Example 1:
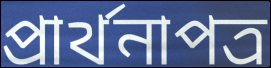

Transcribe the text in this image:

প্রার্থনাপত্র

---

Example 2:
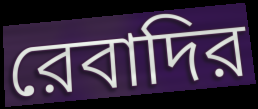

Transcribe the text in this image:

রেবাদির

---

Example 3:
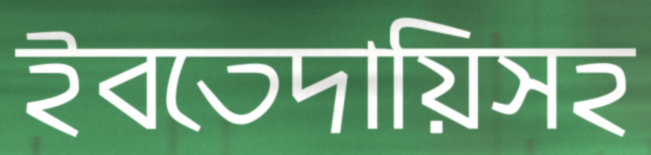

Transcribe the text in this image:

ইবতেদায়িসহ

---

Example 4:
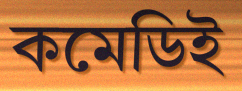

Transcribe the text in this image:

কমেডিই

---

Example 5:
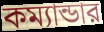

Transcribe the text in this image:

কম্যান্ডার